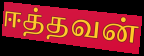
ஈத்தவன்